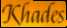
Khades